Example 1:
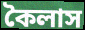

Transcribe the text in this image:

কৈলাস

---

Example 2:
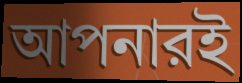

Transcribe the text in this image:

আপনারই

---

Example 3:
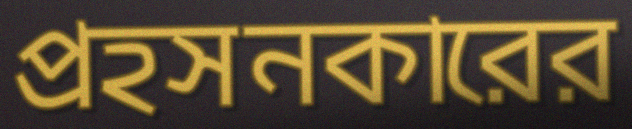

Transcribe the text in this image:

প্রহসনকারের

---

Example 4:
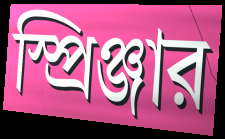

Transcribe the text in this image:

স্প্রিঞ্জার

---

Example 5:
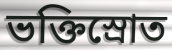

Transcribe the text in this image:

ভক্তিস্রোত